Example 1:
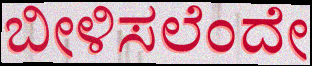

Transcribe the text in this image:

ಬೀಳಿಸಲೆಂದೇ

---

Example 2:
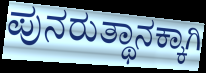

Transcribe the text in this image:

ಪುನರುತ್ಥಾನಕ್ಕಾಗಿ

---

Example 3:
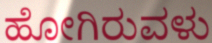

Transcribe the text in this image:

ಹೋಗಿರುವಳು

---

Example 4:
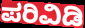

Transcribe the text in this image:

ಪರಿವಿಡಿ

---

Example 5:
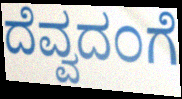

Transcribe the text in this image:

ದೆವ್ವದಂಗೆ